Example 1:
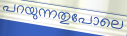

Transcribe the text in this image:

പറയുന്നതുപോലെ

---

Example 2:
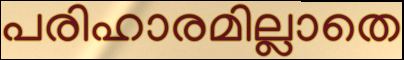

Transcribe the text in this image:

പരിഹാരമില്ലാതെ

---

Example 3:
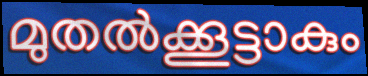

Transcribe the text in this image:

മുതൽക്കൂട്ടാകും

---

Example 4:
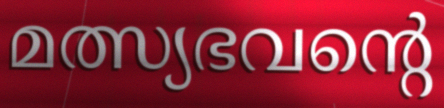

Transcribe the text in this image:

മത്സ്യഭവന്റെ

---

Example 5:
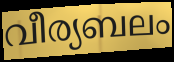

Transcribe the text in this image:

വീര്യബലം